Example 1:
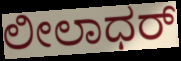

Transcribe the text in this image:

ಲೀಲಾಧರ್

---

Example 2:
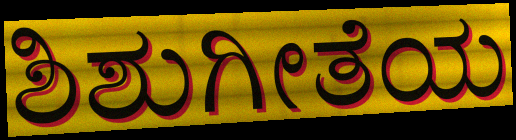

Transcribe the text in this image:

ಶಿಶುಗೀತೆಯ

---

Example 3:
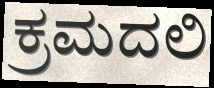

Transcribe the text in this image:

ಕ್ರಮದಲಿ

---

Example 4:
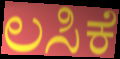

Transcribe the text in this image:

ಲಸಿಕೆ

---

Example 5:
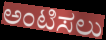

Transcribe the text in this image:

ಅಂಟಿಸಲು